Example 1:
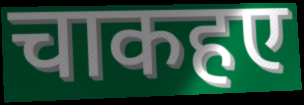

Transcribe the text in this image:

चाकहए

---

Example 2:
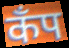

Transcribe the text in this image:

कॅंप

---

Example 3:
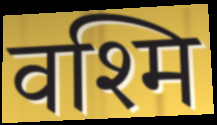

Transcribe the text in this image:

वश्मि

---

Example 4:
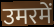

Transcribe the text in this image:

उमरमें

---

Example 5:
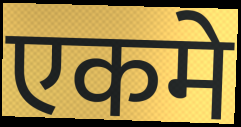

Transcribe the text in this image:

एकमे